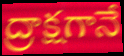
ద్రాక్షగానే